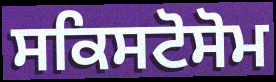
ਸਕਿਸਟੋਸੋਮ